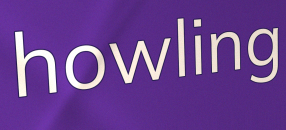
howling